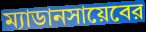
ম্যাডানসায়েবের